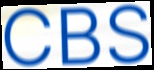
CBS